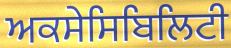
ਅਕਸੇਸਿਬਿਲਿਟੀ